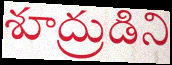
శూద్రుడిని